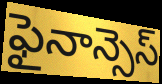
ఫైనాన్సెస్